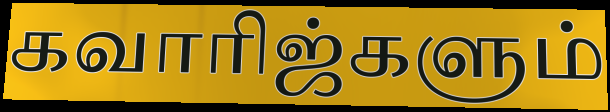
கவாரிஜ்களும்